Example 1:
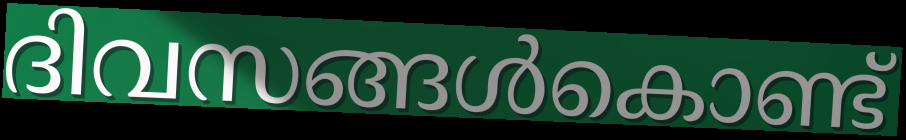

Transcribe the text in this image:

ദിവസങ്ങൾകൊണ്ട്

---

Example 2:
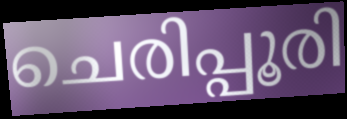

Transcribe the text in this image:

ചെരിപ്പൂരി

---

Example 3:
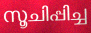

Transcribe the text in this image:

സൂചിപ്പിച്ച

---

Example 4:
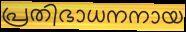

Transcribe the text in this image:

പ്രതിഭാധനനായ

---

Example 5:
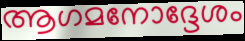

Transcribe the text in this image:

ആഗമനോദ്ദേശം